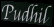
Pudhil